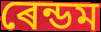
ৰেন্ডম